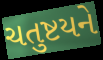
ચતુષ્ટયને